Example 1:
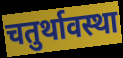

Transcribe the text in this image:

चतुर्थावस्था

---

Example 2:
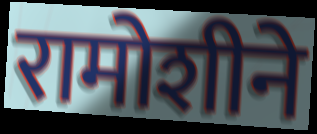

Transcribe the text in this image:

रामोशीने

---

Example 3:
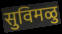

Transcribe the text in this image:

सुविमळु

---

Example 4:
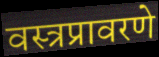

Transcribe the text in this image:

वस्त्रप्रावरणे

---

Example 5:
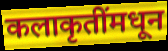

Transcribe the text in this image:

कलाकृतींमधून